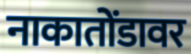
नाकातोंडावर